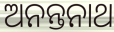
ଅନନ୍ତନାଥ